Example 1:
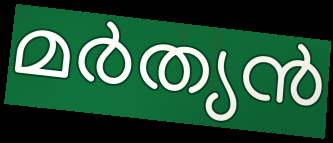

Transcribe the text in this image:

മർത്യൻ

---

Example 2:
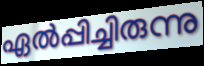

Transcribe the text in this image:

ഏൽപ്പിച്ചിരുന്നു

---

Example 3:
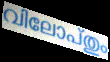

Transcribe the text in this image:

വിലോപ്തും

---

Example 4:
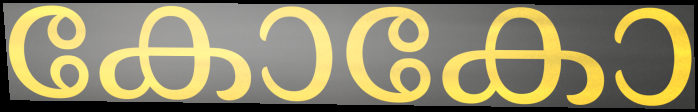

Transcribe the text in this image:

കോകോ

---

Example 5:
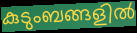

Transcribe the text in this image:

കുടുംബങ്ങളിൽ